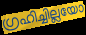
ഗ്രഹിച്ചില്ലയോ